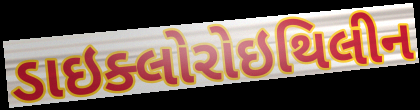
ડાઇક્લોરોઇથિલીન